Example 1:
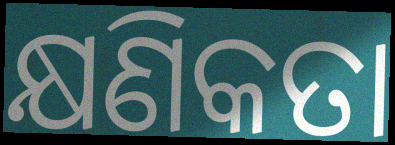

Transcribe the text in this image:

କ୍ଷଣିକତା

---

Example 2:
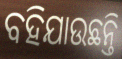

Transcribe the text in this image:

ବହିଯାଉଛନ୍ତି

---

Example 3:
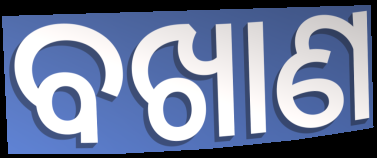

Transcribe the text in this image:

ବଖାଣ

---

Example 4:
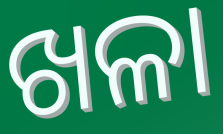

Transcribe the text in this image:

ଖଳା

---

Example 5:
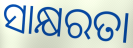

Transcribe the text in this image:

ସାକ୍ଷରତା